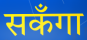
सकँगा